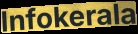
Infokerala